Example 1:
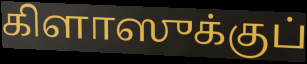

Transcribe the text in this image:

கிளாஸுக்குப்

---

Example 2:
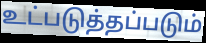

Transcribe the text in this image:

உட்படுத்தப்படும்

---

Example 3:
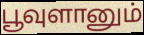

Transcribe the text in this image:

பூவுளானும்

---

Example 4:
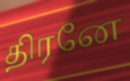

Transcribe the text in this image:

திரனே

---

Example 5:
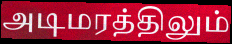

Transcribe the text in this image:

அடிமரத்திலும்